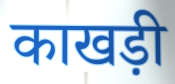
काखड़ी